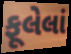
ફૂલેલાં